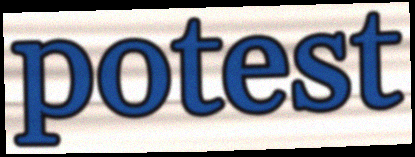
potest